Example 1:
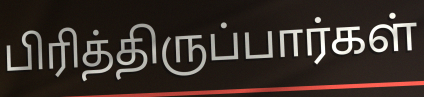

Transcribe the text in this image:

பிரித்திருப்பார்கள்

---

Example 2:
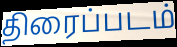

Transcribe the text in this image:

திரைப்படம்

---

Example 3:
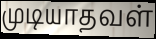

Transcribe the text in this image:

முடியாதவள்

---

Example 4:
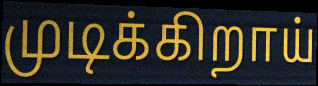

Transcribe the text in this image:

முடிக்கிறாய்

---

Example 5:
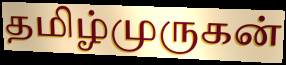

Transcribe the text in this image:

தமிழ்முருகன்